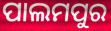
ପାଲମପୁର